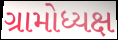
ગ્રામોધ્યક્ષ